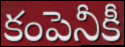
కంపెనీకీ